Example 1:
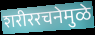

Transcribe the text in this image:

शरीररचनेमुळे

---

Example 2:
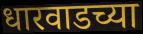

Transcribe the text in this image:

धारवाडच्या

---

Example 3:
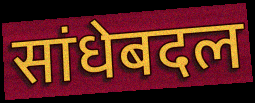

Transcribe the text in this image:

सांधेबदल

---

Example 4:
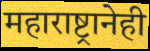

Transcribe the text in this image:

महाराष्ट्रानेही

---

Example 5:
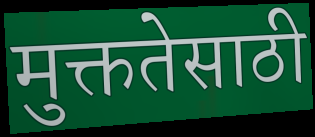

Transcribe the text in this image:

मुक्ततेसाठी